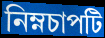
নিম্নচাপটি